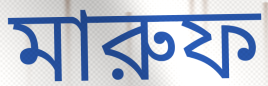
মারুফ